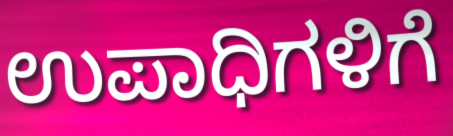
ಉಪಾಧಿಗಳಿಗೆ